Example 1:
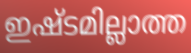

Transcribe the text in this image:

ഇഷ്ടമില്ലാത്ത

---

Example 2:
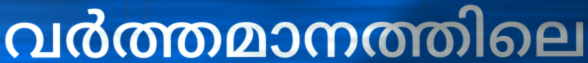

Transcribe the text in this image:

വർത്തമാനത്തിലെ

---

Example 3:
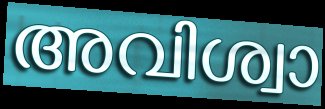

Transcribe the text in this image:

അവിശ്വാ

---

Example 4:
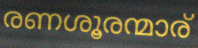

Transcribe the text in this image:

രണശൂരന്മാര്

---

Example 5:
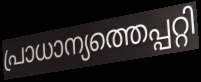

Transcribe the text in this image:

പ്രാധാന്യത്തെപ്പറ്റി